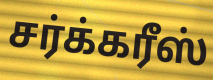
சர்க்கரீஸ்